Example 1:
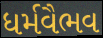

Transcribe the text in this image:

ધર્મવૈભવ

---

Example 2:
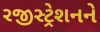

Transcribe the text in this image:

રજીસ્ટ્રેશનને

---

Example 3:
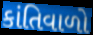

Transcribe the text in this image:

કાંતિવાળો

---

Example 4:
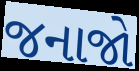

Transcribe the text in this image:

જનાજો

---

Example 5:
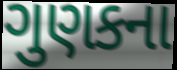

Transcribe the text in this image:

ગુણકના